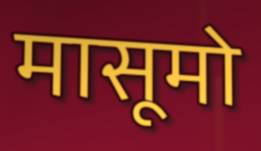
मासूमो